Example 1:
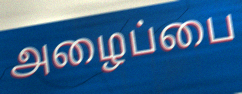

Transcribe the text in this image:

அழைப்பை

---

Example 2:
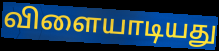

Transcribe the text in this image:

விளையாடியது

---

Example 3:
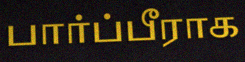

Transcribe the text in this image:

பார்ப்பீராக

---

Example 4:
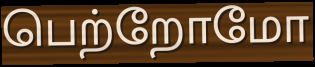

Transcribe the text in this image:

பெற்றோமோ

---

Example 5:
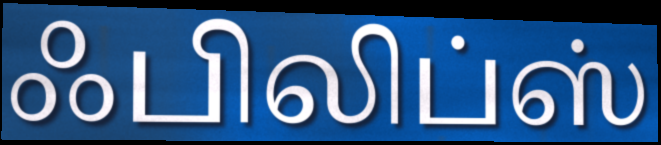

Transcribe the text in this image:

ஃபிலிப்ஸ்